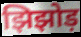
झिझोड़